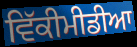
ਵਿੱਕੀਮੀਡੀਆ